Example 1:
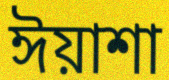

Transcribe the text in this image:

ঈয়াশা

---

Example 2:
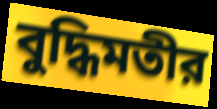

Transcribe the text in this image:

বুদ্ধিমতীর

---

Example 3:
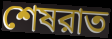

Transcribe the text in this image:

শেষরাত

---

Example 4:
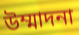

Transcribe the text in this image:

উম্মাদনা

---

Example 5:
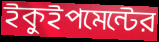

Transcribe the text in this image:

ইকুইপমেন্টের